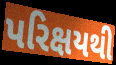
પરિક્ષયથી